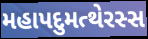
મહાપદુમત્થેરસ્સ